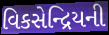
વિકસેન્દ્રિયની